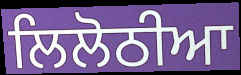
ਲਿਲੋਠੀਆ